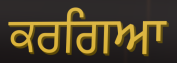
ਕਰਗਿਆ